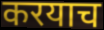
करयाच